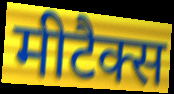
मीटैक्स